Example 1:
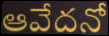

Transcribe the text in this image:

ఆవేదనో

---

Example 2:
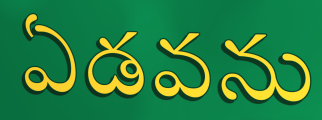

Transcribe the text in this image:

ఏడవను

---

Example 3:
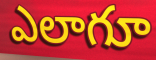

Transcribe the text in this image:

ఎలాగూ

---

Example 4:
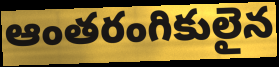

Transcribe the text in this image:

ఆంతరంగికులైన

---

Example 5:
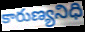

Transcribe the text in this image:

కారుణ్యనిధి